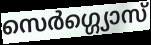
സെർഗ്ഗ്യൊസ്